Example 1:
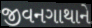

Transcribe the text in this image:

જીવનગાથાને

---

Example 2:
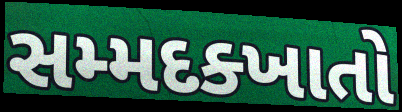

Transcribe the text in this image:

સમ્મદક્ખાતો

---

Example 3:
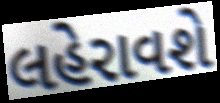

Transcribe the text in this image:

લહેરાવશે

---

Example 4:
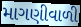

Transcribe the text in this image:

માગણીવાળી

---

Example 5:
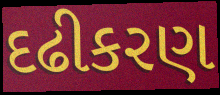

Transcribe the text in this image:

દઢીકરણ